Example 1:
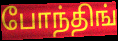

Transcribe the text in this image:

போந்திங்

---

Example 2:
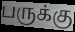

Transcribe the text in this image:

பருக்கு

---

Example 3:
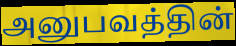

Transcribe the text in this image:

அனுபவத்தின்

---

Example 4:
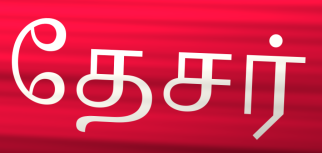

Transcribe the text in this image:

தேசர்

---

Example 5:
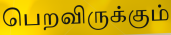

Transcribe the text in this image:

பெறவிருக்கும்